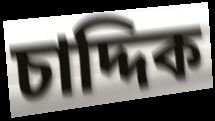
চাদ্দিক